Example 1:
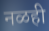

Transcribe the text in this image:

नळही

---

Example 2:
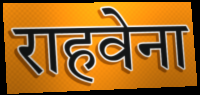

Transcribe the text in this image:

राहवेना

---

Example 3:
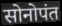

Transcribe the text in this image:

सोनोपंत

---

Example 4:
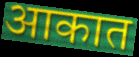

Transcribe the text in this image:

आकात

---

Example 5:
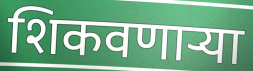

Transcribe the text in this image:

शिकवणाऱ्या